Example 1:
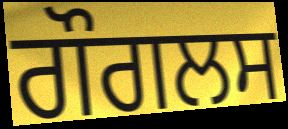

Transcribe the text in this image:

ਗੌਗਲਸ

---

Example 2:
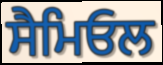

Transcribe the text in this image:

ਸੈਮਿਓਲ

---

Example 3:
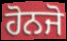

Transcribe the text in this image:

ਹੋਨਜੋ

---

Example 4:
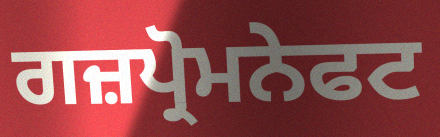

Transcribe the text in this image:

ਗਜ਼ਪ੍ਰੋਮਨੇਫਟ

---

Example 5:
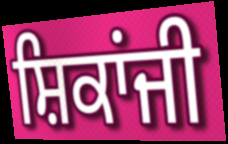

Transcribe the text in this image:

ਸ਼ਿਕਾਂਜੀ